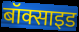
बॉक्साइड